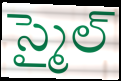
స్మైల్